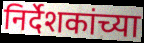
निर्देशकांच्या